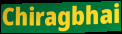
Chiragbhai